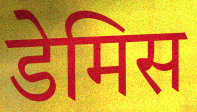
डेमिस